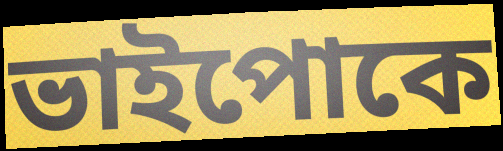
ভাইপোকে